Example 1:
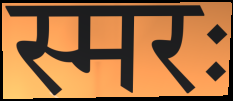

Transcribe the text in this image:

स्मरः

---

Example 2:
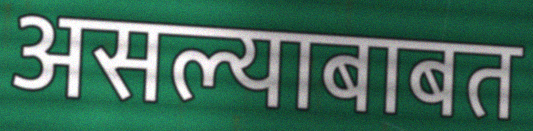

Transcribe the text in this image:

असल्याबाबत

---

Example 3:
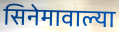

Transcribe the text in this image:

सिनेमावाल्या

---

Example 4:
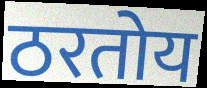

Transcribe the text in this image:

ठरतोय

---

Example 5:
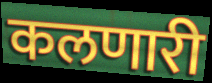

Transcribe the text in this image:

कलणारी